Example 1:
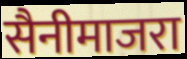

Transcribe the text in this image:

सैनीमाजरा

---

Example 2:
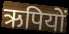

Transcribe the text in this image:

ऋपियों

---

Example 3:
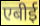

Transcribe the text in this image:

एबीई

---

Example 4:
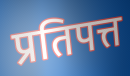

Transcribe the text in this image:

प्रतिपत्त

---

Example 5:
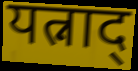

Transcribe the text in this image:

यत्नाद्